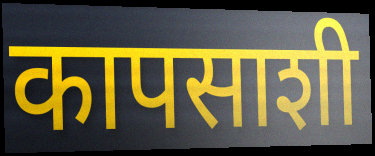
कापसाशी